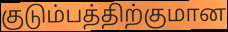
குடும்பத்திற்குமான